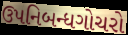
ઉપનિબન્ધગોચરો